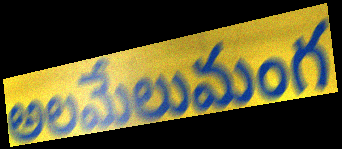
అలమేలుమంగ